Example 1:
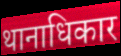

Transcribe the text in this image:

थानाधिकार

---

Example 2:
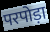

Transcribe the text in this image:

परपोड़ा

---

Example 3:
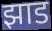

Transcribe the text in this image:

झाड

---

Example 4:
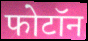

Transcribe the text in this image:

फोटॉन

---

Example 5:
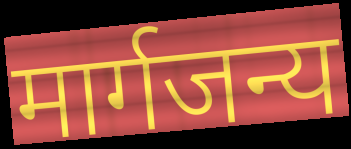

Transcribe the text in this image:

मार्गजन्य